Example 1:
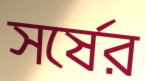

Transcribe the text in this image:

সর্ষের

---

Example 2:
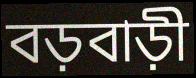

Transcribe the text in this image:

বড়বাড়ী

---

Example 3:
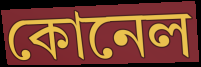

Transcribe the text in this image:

কোনেল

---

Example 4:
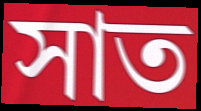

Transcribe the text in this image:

সাত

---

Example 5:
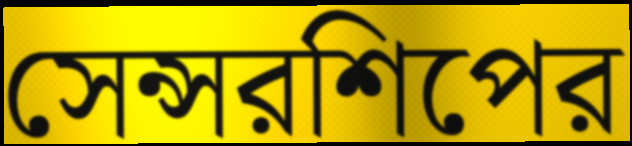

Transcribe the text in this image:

সেন্সরশিপের